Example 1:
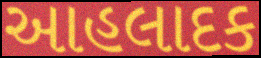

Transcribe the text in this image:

આહલાદક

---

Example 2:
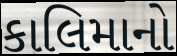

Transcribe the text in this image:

કાલિમાનો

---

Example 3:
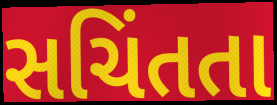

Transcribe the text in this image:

સચિંતતા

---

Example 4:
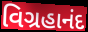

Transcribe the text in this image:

વિગ્રહાનંદ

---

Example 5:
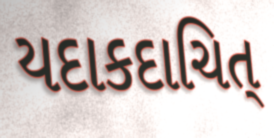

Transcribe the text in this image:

યદાકદાચિત્